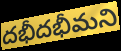
దభీదభీమని